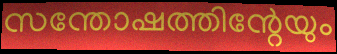
സന്തോഷത്തിന്റേയും